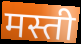
मस्‍ती